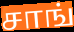
சாங்